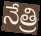
నేత్రి